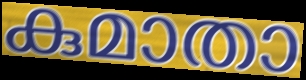
കുമാതാ